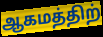
ஆகமத்திற்